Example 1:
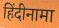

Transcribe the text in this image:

हिंदीनामा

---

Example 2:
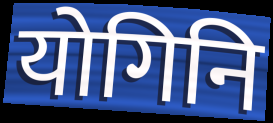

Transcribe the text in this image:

योगिनि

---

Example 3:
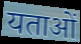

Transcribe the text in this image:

यताओं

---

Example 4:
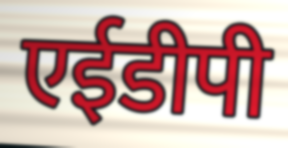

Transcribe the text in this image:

एईडीपी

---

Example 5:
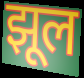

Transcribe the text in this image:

झूल